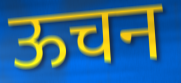
ऊचन